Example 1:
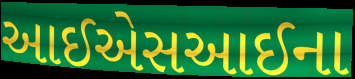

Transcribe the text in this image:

આઈએસઆઈના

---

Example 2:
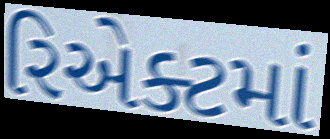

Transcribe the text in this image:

રિએક્ટમાં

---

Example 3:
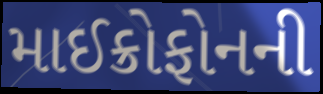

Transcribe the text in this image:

માઈક્રોફોનની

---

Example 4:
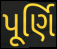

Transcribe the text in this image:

પૂર્ણિ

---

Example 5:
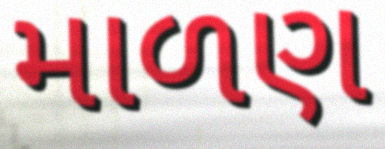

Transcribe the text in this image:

માળણ